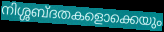
നിശ്ശബ്ദതകളൊക്കെയും